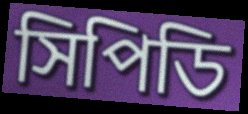
সিপিডি